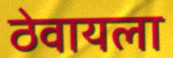
ठेवायला